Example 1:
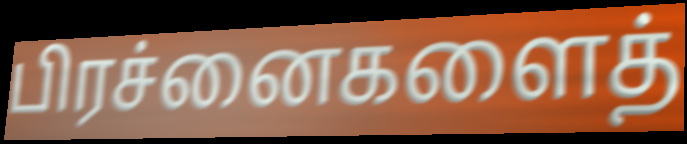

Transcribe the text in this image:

பிரச்னைகளைத்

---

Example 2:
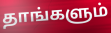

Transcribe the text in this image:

தாங்களும்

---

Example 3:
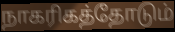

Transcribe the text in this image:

நாகரிகத்தோடும்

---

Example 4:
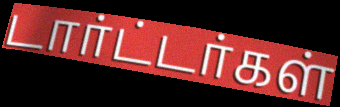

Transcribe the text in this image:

டார்ட்டர்கள்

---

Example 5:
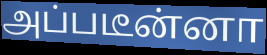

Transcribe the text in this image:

அப்படீன்னா